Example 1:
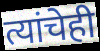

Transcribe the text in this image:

त्यांचेही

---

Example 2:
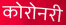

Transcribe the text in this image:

कोरोनरी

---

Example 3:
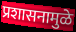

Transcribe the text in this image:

प्रशासनामुळे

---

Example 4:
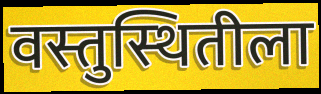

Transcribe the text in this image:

वस्तुस्थितीला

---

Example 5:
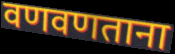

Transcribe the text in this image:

वणवणताना